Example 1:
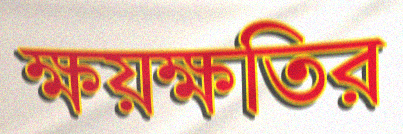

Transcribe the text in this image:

ক্ষয়ক্ষতির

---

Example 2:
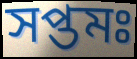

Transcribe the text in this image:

সপ্তমঃ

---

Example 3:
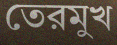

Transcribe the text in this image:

তেরমুখ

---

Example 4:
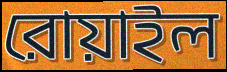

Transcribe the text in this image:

রোয়াইল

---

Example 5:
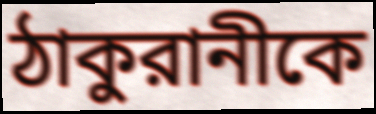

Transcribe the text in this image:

ঠাকুরানীকে